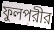
ফুলপরীর